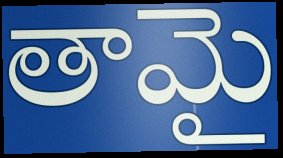
తామై